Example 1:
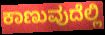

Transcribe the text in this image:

ಕಾಣುವುದೆಲ್ಲಿ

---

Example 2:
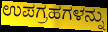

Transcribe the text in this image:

ಉಪಗ್ರಹಗಳನ್ನು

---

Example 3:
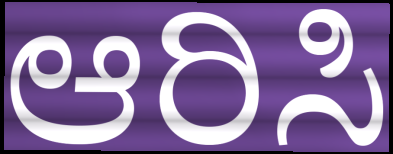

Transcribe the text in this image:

ಆರಿಸಿ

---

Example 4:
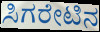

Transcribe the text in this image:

ಸಿಗರೇಟಿನ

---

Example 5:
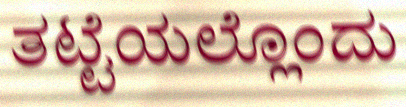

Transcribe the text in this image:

ತಟ್ಟೆಯಲ್ಲೊಂದು